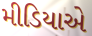
મીડિયાએ